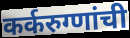
कर्करुग्णांची